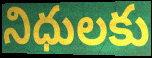
నిధులకు